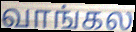
வாங்கல